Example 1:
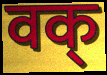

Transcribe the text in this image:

वक्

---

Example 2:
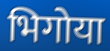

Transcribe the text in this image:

भिगोया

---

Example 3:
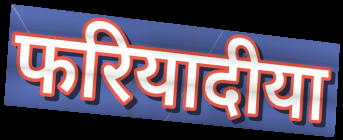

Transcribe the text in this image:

फरियादीया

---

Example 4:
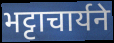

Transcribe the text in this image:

भट्टाचार्यने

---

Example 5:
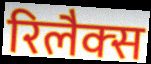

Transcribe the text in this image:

रिलैक्‍स